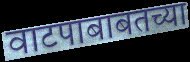
वाटपाबाबतच्या